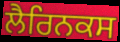
ਲੈਰਿਨਕਸ